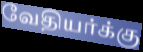
வேதியர்க்கு